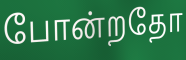
போன்றதோ